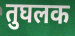
तुघलक